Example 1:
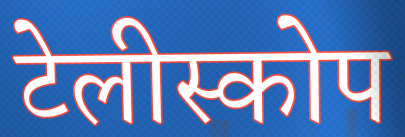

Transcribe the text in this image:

टेलीस्कोप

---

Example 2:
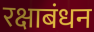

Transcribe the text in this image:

रक्षाबंधन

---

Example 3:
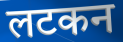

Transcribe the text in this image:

लटकन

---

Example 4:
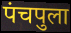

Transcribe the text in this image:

पंचपुला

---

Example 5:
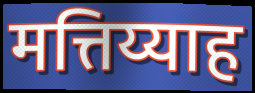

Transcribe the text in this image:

मत्तिय्याह